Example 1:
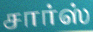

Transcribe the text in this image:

சார்ஸ்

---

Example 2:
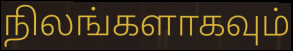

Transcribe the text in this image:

நிலங்களாகவும்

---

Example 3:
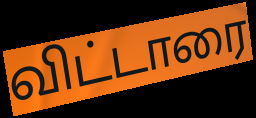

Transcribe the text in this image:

விட்டாரை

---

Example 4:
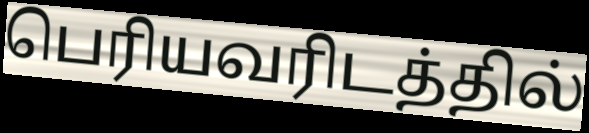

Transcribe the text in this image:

பெரியவரிடத்தில்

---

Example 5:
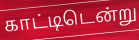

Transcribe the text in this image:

காட்டிடென்று